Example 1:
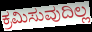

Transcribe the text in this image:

ಕ್ರಮಿಸುವುದಿಲ್ಲ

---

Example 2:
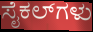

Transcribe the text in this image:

ಸೈಕಲ್‌ಗಳು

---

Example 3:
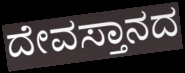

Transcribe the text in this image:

ದೇವಸ್ತಾನದ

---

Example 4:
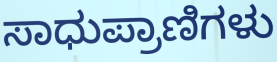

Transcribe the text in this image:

ಸಾಧುಪ್ರಾಣಿಗಳು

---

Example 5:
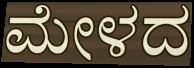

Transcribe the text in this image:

ಮೇಳದ